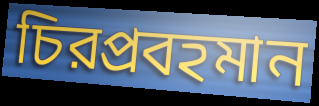
চিরপ্রবহমান